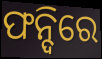
ଫନ୍ଦିରେ